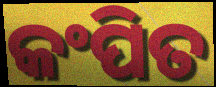
କଂପିତ